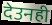
देउनही